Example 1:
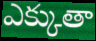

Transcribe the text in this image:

ఎక్కుతా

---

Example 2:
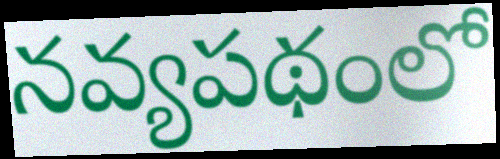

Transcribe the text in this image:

నవ్యపథంలో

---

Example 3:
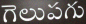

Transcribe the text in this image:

గెలుపగు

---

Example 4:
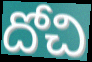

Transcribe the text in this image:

దోచి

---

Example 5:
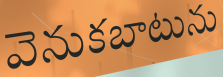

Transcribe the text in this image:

వెనుకబాటును